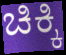
ಚಿಕ್ಕಿ